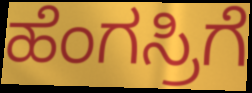
ಹೆಂಗಸ್ರಿಗೆ